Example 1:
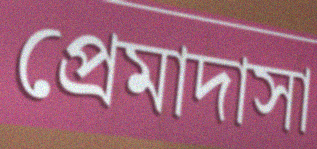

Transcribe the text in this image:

প্রেমাদাসা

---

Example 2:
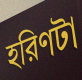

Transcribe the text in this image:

হরিণটা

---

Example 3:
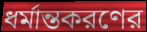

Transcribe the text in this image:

ধর্মান্তকরণের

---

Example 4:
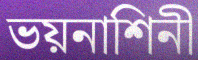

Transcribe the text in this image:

ভয়নাশিনী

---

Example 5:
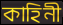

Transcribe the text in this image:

কাহিনী